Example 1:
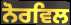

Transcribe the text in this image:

ਨੋਰਵਿਲ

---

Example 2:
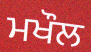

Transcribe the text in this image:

ਮਖੌਲ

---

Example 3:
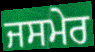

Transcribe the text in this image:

ਜਸਮੇਰ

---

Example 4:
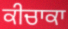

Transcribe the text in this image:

ਕੀਚਾਕਾ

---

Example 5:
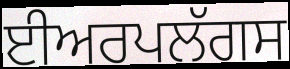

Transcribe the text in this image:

ਈਅਰਪਲੱਗਸ